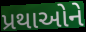
પ્રથાઓને